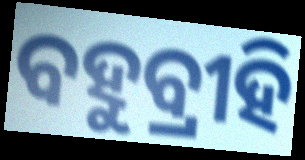
ବହୁବ୍ରୀହି